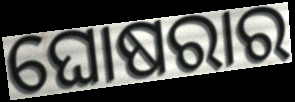
ଘୋଷରାର